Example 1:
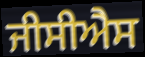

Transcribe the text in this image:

ਜੀਸੀਐਸ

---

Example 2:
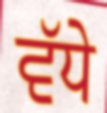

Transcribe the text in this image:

ਵੱਧੇ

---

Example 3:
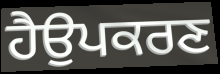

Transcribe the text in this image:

ਹੈਉਪਕਰਣ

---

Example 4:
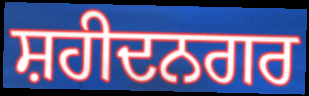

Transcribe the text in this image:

ਸ਼ਹੀਦਨਗਰ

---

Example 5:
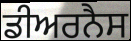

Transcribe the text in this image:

ਡੀਅਰਨੈਸ